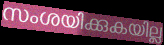
സംശയിക്കുകയില്ല